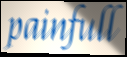
painfull